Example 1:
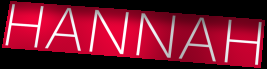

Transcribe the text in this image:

HANNAH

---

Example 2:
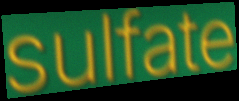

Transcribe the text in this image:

sulfate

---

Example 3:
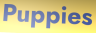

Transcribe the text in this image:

Puppies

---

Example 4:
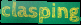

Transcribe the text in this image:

clasping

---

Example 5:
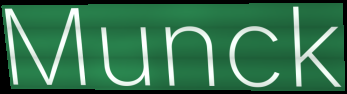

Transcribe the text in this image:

Munck